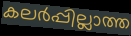
കലർപ്പില്ലാത്ത